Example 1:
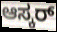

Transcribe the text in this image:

ಆಸ್ಕರ್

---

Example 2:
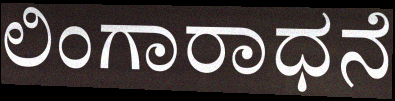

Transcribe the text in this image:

ಲಿಂಗಾರಾಧನೆ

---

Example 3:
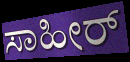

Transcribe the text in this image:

ಸಾಹೀರ್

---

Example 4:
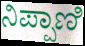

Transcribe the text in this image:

ನಿಪ್ಪಾಣಿ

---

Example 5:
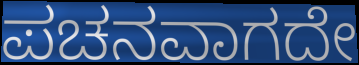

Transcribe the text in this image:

ಪಚನವಾಗದೇ